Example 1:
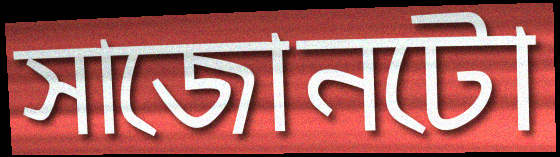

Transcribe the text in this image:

সাজোনটো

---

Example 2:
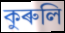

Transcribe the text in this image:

কুৰুলি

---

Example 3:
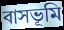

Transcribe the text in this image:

বাসভূমি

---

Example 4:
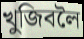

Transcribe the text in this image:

খুজিবলৈ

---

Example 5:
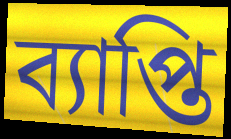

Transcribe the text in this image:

ব্যাপ্তি